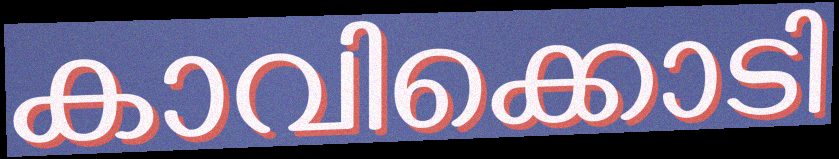
കാവിക്കൊടി